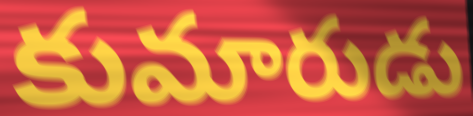
కుమారుడు